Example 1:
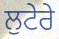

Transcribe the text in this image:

ਲੁਟੇਰੇ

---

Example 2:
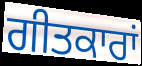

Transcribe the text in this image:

ਗੀਤਕਾਰਾਂ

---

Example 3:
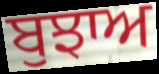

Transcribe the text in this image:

ਬੁਝਾਅ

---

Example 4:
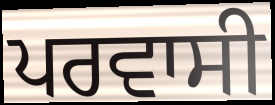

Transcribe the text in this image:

ਪਰਵਾਸੀ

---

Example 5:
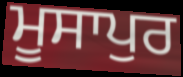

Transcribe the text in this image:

ਮੂਸਾਪੁਰ